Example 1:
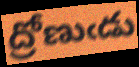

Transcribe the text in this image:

ద్రోణుఁడు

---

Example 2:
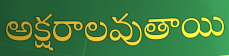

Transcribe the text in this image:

అక్షరాలవుతాయి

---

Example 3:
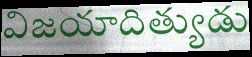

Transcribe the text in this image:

విజయాదిత్యుడు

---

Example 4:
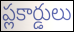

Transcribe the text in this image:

ప్లకార్డులు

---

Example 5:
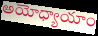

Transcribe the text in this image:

అయోధ్యాయాం